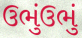
ઉભુંઉભું